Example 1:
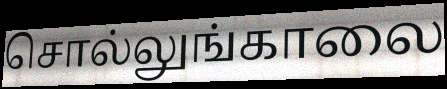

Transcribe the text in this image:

சொல்லுங்காலை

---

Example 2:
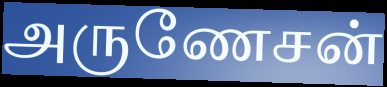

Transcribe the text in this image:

அருணேசன்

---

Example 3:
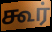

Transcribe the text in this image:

கூர்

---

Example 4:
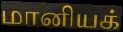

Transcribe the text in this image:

மானியக்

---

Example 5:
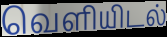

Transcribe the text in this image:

வெளியிடல்